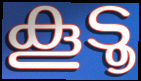
കൂടൂ